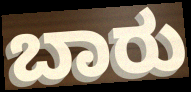
ಬಾರು